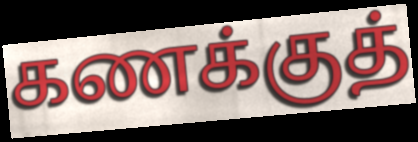
கணக்குத்